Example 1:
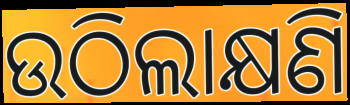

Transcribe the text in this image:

ଉଠିଲାକ୍ଷଣି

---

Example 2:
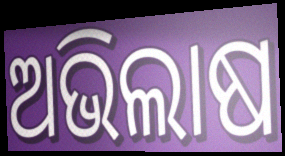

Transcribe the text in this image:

ଅଭିଲାଷ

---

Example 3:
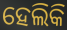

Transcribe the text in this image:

ହେଲିକି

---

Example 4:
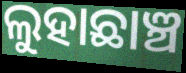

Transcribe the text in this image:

ଲୁହାଛାଞ୍ଚ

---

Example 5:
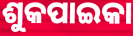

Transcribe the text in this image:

ଶୁକପାଇକା